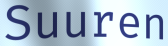
Suuren